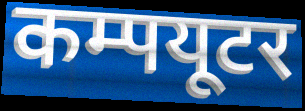
कम्पयूटर